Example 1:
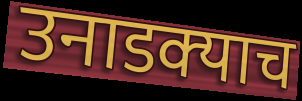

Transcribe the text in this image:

उनाडक्याच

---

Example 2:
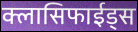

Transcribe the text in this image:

क्लासिफाईड्स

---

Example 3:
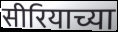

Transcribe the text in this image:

सीरियाच्या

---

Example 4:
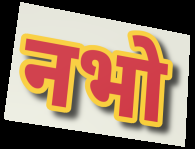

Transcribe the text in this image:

नभो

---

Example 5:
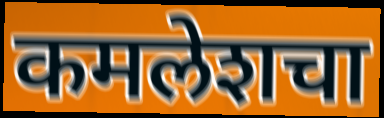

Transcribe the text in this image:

कमलेशचा